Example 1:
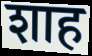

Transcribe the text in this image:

शाह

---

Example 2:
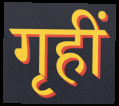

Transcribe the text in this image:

गृहीं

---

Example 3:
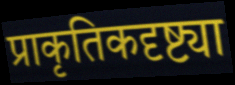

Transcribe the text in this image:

प्राकृतिकदृष्ट्या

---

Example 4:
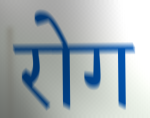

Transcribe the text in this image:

रोग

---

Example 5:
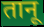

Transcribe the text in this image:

तानू